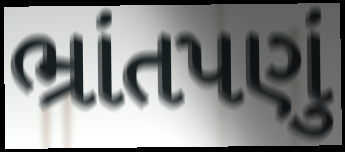
ભ્રાંતપણું